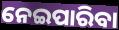
ନେଇପାରିବା